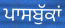
ਪਾਸਬੁੱਕਾਂ